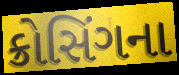
ક્રોસિંગના